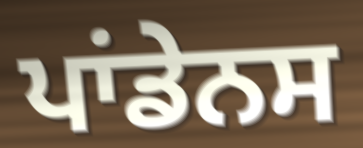
ਪਾਂਡੇਨਸ